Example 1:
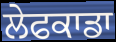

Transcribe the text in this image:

ਲੇਫਕਾਡਾ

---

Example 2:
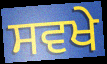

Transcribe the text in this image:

ਸਵਖੇ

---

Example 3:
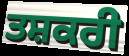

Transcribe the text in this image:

ਤਸ਼ਕਰੀ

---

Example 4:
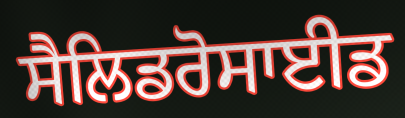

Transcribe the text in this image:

ਸੈਲਿਡਰੋਸਾਈਡ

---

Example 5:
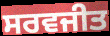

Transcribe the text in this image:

ਸਰਵਜੀਤ